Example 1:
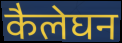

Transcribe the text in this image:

कैलेघन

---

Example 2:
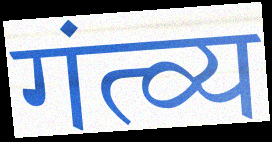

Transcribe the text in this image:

गंत्व्य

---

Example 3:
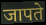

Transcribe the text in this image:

जापते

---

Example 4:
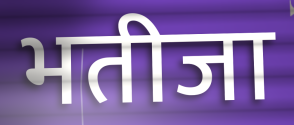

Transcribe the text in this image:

भतीजा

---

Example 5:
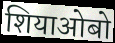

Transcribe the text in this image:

शियाओबो